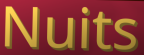
Nuits